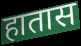
हातास